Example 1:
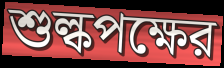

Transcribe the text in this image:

শুল্কপক্ষের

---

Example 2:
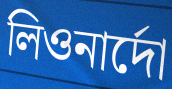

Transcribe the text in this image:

লিওনার্দো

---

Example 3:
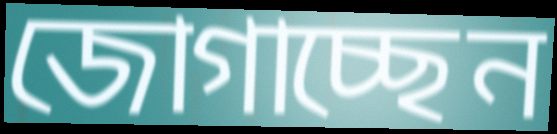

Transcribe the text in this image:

জোগাচ্ছেন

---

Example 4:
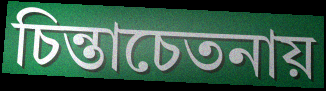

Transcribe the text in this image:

চিন্তাচেতনায়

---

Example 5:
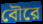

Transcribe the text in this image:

বৌরে